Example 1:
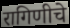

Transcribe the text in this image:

रागिणीचे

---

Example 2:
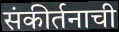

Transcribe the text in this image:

संकीर्तनाची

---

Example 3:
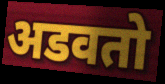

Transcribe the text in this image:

अडवतो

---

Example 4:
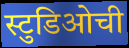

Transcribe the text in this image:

स्टुडिओची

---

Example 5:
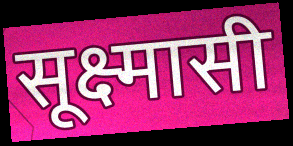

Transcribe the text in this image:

सूक्ष्मासी